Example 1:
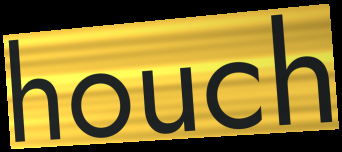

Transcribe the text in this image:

houch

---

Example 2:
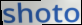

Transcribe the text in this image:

shoto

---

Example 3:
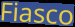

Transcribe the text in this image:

Fiasco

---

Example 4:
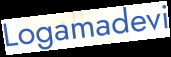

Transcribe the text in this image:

Logamadevi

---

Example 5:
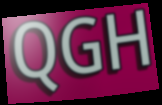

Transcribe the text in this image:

QGH